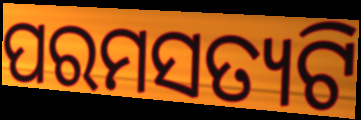
ପରମସତ୍ୟଟି